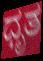
ಧೃತ